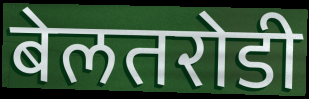
बेलतरोडी